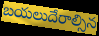
బయలుదేరాల్సిన